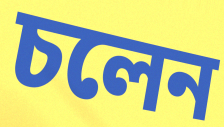
চলেন